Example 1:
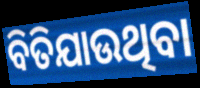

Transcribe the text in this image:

ବିତିଯାଉଥିବା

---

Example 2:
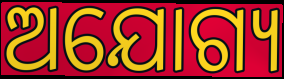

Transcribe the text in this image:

ଅଯୋଗ୍ୟ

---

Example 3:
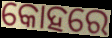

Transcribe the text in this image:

କୋହରେ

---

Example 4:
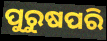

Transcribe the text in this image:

ପୁରୁଷପରି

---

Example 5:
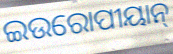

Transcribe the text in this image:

ଇଉରୋପୀୟାନ୍